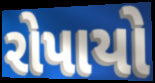
રોપાયો